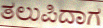
ತಲುಪಿದಾಗ